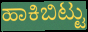
ಹಾಕಿಬಿಟ್ಟು